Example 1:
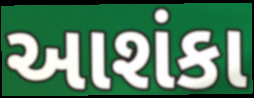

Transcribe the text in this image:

આશંકા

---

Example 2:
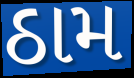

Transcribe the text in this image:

ઠામ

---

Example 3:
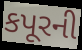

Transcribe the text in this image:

કપૂરની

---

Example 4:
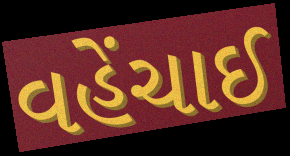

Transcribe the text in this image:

વહેંચાઈ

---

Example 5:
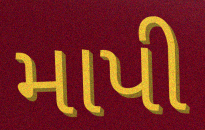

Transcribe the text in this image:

માપી